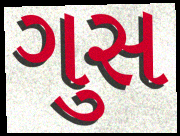
ગુસ